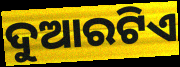
ଦୁଆରଟିଏ